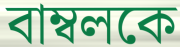
বাম্বলকে